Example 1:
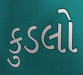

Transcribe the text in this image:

કુડલો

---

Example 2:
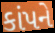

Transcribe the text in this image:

કાંપને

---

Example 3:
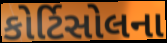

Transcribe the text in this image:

કોર્ટિસોલના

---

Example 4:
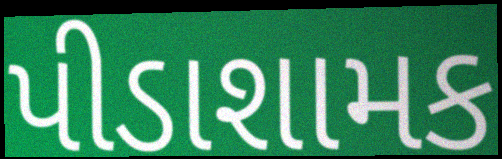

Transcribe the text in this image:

પીડાશામક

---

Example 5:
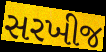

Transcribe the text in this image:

સરખીજ